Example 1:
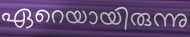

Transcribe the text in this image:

ഏറെയായിരുന്നു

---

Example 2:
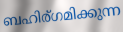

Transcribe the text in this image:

ബഹിര്ഗമിക്കുന്ന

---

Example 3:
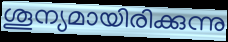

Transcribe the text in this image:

ശൂന്യമായിരിക്കുന്നു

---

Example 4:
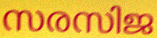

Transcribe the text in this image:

സരസിജ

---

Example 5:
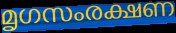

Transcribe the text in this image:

മൃഗസംരക്ഷണ